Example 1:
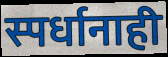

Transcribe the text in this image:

स्पर्धानाही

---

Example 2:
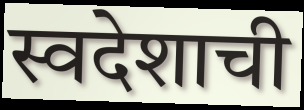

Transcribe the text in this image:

स्वदेशाची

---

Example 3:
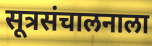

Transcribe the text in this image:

सूत्रसंचालनाला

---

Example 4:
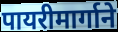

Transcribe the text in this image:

पायरीमार्गाने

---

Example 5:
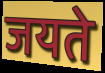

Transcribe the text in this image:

जयते